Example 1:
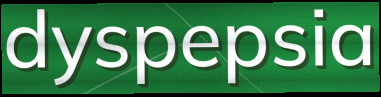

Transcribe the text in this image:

dyspepsia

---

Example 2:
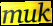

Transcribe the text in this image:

muk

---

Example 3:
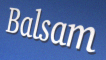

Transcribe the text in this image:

Balsam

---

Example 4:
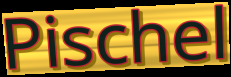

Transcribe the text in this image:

Pischel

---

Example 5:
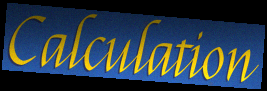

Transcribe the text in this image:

Calculation